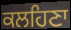
ਕਲਹਿਣਾ